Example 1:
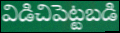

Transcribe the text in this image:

విడిచిపెట్టబడి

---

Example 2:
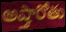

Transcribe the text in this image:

అష్తారోతు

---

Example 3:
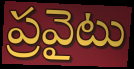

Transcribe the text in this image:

ప్రవైటు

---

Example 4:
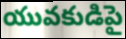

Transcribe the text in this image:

యువకుడిపై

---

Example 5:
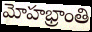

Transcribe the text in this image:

మోహభ్రాంతి